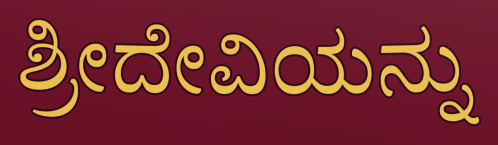
ಶ್ರೀದೇವಿಯನ್ನು